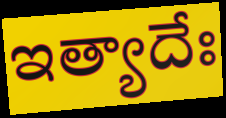
ఇత్యాదేః